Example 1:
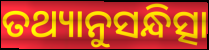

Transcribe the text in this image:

ତଥ୍ୟାନୁସନ୍ଧିତ୍ସା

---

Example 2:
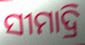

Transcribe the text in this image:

ସୀମାଦ୍ରି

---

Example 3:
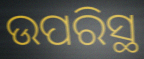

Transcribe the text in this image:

ଉପରିସ୍ଥ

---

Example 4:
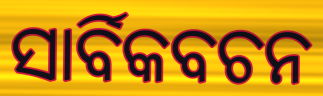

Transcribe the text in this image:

ସାର୍ବିକବଚନ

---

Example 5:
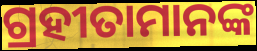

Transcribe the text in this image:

ଗ୍ରହୀତାମାନଙ୍କ